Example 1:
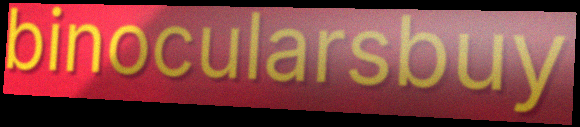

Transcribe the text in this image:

binocularsbuy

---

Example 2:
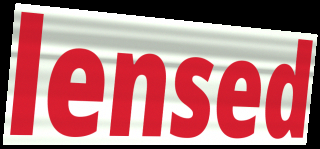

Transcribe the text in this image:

lensed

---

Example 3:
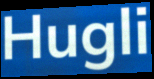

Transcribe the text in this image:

Hugli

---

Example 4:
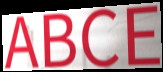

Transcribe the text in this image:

ABCE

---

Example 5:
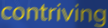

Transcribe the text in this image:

contriving